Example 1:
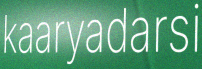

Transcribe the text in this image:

kaaryadarsi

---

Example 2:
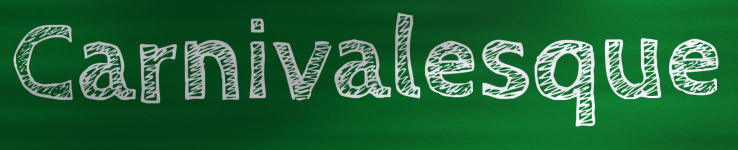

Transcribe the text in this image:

Carnivalesque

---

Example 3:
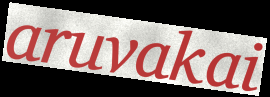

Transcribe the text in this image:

aruvakai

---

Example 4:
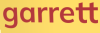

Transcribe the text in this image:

garrett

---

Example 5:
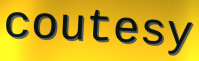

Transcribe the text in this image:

coutesy